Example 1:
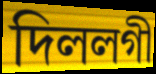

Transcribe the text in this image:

দিললগী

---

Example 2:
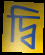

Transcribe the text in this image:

দ্বি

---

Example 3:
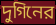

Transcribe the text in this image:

দুগিনের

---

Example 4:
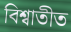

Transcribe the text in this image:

বিশ্বাতীত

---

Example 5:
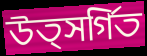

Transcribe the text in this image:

উত্সর্গিত